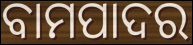
ବାମପାଦର